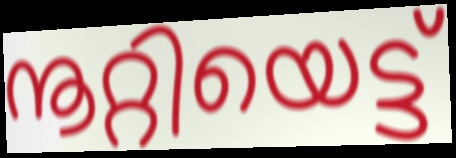
നൂറ്റിയെട്ട്